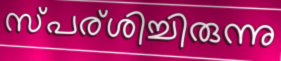
സ്പര്ശിച്ചിരുന്നു